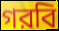
গরবি